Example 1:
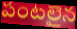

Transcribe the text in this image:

పంటలైన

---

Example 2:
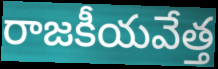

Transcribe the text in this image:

రాజకీయవేత్త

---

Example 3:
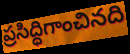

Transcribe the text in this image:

ప్రసిద్ధిగాంచినది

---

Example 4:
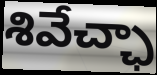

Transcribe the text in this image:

శివేచ్ఛా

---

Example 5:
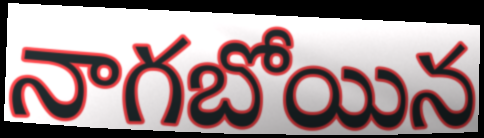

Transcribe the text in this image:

నాగబోయిన